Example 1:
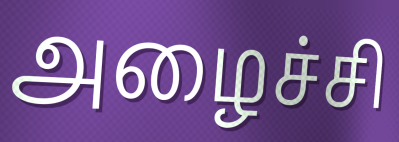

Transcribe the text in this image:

அழைச்சி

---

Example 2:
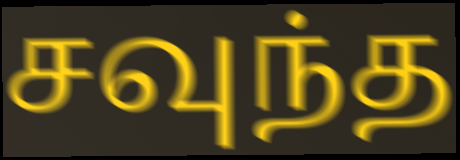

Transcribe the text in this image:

சவுந்த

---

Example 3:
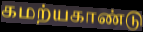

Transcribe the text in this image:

கமற்யகாண்டு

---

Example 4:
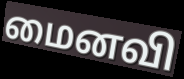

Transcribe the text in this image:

மைனவி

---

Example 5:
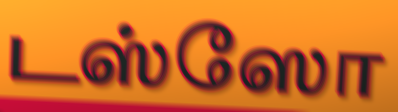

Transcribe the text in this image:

டஸ்ஸோ